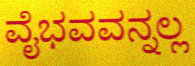
ವೈಭವವನ್ನಲ್ಲ